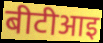
बीटीआइ